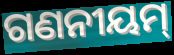
ଗଣନୀୟମ୍